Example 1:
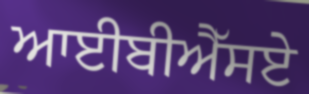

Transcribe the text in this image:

ਆਈਬੀਐੱਸਏ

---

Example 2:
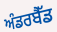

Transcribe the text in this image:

ਅੰਡਰਬੈੱਡ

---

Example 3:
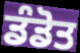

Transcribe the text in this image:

ਡੰਡੋਤ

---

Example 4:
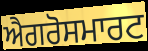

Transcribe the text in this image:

ਐਗਰੋਸਮਾਰਟ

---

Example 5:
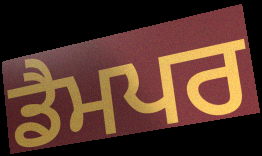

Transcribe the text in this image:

ਡੈਮਪਰ